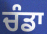
ਚੰਡਾ